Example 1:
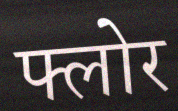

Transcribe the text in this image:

फ्लोर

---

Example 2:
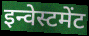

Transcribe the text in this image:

इन्वेस्टमेंट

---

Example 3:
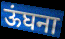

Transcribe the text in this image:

ऊंघना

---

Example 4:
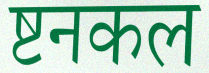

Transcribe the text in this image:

ष्टनकल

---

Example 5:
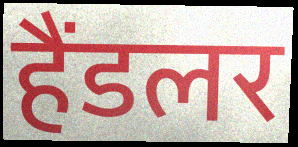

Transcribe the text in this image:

हैंडलर